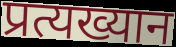
प्रत्यख्यान